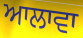
ਆਲਾਵਾ